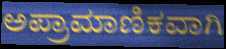
ಅಪ್ರಾಮಾಣಿಕವಾಗಿ